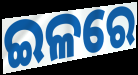
ଇଳରେ